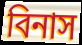
বিনাস